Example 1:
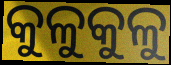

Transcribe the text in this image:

କୁଳୁକୁଳୁ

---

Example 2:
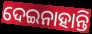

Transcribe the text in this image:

ଦେଇନାହାନ୍ତି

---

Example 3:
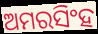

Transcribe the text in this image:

ଅମରସିଂହ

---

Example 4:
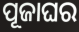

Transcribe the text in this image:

ପୂଜାଘର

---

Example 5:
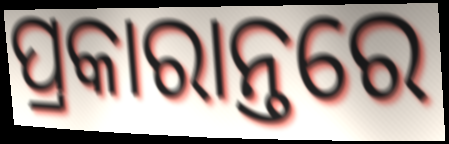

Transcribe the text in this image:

ପ୍ରକାରାନ୍ତରେ